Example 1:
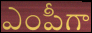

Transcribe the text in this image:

ఎంపీగా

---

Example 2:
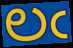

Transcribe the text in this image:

లఁ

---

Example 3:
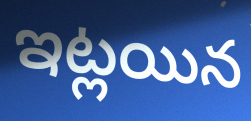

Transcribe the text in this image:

ఇట్లయిన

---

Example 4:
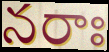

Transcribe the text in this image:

నరాః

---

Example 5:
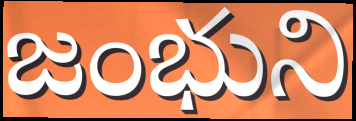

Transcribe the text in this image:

జంభుని